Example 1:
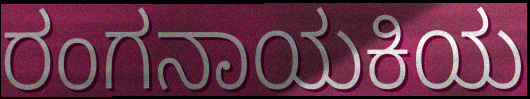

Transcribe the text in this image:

ರಂಗನಾಯಕಿಯ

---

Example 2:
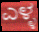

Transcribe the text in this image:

ಎಳ್ಳ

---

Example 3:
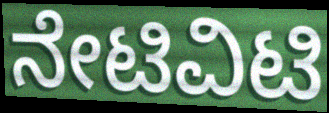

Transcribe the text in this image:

ನೇಟಿವಿಟಿ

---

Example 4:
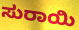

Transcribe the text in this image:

ಸುರಾಯಿ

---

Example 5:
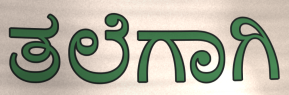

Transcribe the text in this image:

ತಲೆಗಾಗಿ